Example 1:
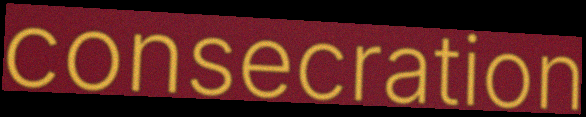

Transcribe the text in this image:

consecration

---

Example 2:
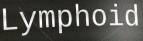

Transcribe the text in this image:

Lymphoid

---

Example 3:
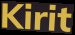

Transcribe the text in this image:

Kirit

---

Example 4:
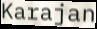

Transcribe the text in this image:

Karajan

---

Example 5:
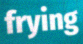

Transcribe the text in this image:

frying